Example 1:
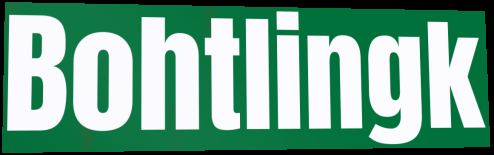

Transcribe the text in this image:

Bohtlingk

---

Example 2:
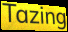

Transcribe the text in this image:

Tazing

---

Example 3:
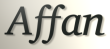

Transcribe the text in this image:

Affan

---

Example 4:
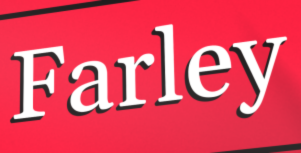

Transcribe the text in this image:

Farley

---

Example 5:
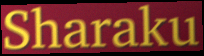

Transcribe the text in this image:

Sharaku